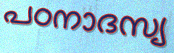
പഠനാദസ്യ